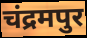
चंद्रमपुर